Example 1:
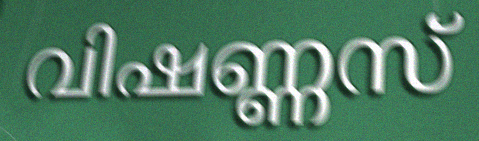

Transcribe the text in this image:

വിഷണ്ണസ്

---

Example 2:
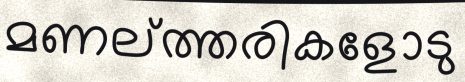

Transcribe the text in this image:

മണല്ത്തരികളോടു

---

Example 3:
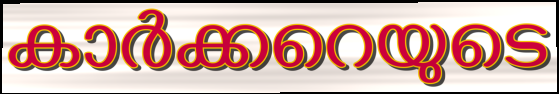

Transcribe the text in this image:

കാർക്കറെയുടെ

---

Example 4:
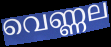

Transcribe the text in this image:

വെണ്ണല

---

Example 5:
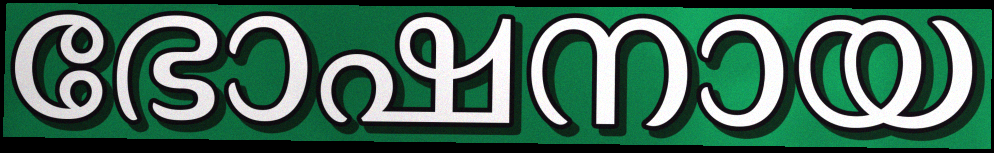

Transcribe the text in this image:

ഭോഷനായ